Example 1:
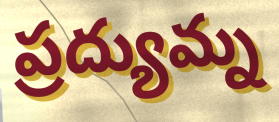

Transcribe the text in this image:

ప్రద్యుమ్న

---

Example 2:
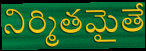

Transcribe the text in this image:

నిర్మితమైతే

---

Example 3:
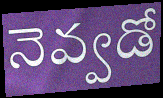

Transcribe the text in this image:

నెవ్వడో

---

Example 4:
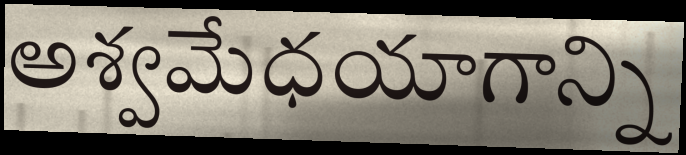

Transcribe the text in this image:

అశ్వమేధయాగాన్ని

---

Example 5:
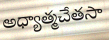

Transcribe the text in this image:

అధ్యాత్మచేతసా